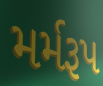
મર્મરૂપ